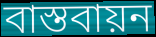
বাস্তবায়ন